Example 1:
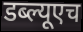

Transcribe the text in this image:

डब्ल्यूएच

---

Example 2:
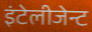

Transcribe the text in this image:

इंटेलीजेन्ट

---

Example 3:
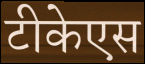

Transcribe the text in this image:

टीकेएस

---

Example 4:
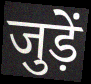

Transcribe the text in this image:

जुड़ें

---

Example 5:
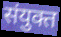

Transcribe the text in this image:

संयुक्त